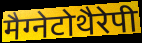
मैग्नेटोथैरेपी